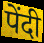
पेंदी